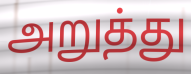
அறுத்து